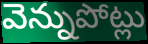
వెన్నుపోట్లు